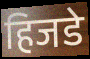
हिजडे